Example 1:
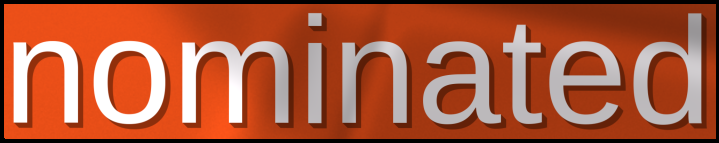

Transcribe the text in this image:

nominated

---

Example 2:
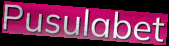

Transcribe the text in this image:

Pusulabet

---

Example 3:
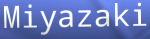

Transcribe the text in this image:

Miyazaki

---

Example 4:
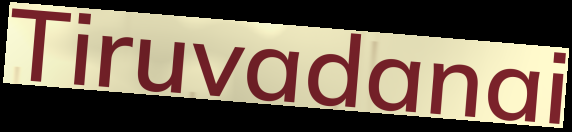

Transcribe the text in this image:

Tiruvadanai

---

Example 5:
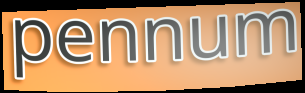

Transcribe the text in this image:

pennum